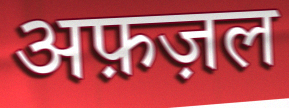
अफ़ज़ल